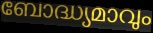
ബോദ്ധ്യമാവും